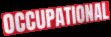
OCCUPATIONAL